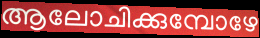
ആലോചിക്കുമ്പോഴേ